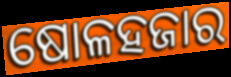
ଷୋଳହଜାର